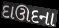
દાઊદના